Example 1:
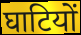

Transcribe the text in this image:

घाटियों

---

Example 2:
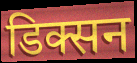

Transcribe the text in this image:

डिक्सन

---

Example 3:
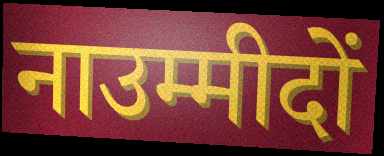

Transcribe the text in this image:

नाउम्मीदों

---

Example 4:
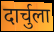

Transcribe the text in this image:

दार्चुला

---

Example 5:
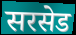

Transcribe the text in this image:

सरसेड